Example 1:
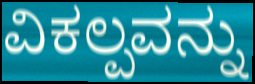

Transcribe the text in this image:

ವಿಕಲ್ಪವನ್ನು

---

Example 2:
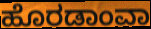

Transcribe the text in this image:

ಹೊರಡಾಂವಾ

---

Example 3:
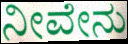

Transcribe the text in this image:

ನೀವೇನು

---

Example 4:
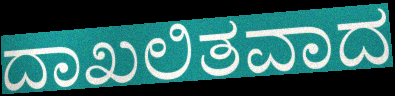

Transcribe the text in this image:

ದಾಖಲಿತವಾದ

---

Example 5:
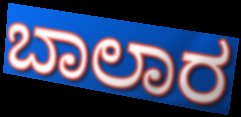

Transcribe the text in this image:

ಬಾಲಾರ